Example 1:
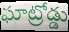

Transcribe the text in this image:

ఘాట్రోడ్డు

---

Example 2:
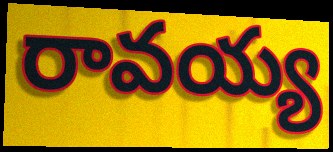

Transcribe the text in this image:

రావయ్య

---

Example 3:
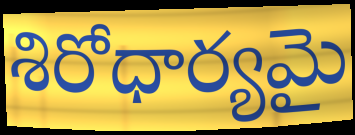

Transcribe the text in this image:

శిరోధార్యమై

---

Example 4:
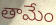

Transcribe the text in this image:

తామేం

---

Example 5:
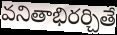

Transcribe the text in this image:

వనితాభిరర్చితే